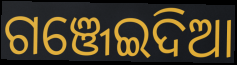
ଗଞ୍ଜେଇଦିଆ